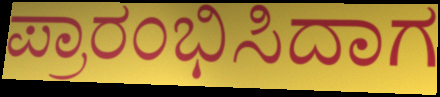
ಪ್ರಾರಂಭಿಸಿದಾಗ